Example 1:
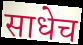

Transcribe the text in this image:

साधेच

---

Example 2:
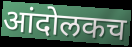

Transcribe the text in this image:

आंदोलकच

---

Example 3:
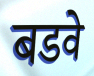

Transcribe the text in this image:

बडवे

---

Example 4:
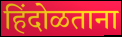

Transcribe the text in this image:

हिंदोळताना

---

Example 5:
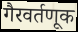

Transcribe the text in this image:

गैरवर्तणूक